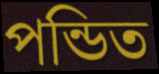
পন্ডিত